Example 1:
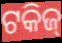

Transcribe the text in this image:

ଟକିଜ୍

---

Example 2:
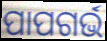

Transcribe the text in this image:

ପାପଗର୍ଭ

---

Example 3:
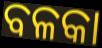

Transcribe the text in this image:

ବଳକା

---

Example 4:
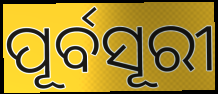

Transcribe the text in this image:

ପୂର୍ବସୂରୀ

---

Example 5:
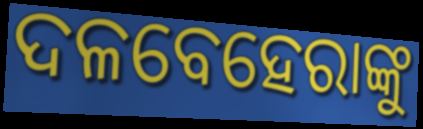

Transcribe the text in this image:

ଦଳବେହେରାଙ୍କୁ